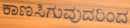
ಕಾಣಸಿಗುವುದರಿಂದ